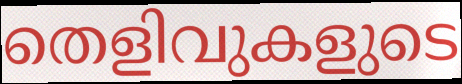
തെളിവുകളുടെ